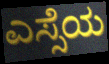
ಎಸ್ಸೆಯ